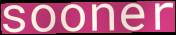
sooner